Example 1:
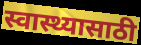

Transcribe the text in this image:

स्वास्थ्यासाठी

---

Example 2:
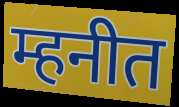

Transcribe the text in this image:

म्हनीत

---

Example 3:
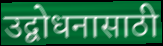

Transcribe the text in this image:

उद्बोधनासाठी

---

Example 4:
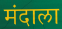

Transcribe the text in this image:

मंदाला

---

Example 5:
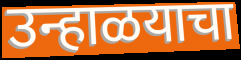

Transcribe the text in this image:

उन्हाळयाचा